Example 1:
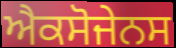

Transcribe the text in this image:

ਐਕਸੋਜੇਨਸ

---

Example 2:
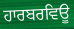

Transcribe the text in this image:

ਹਾਰਬਰਵਿਊ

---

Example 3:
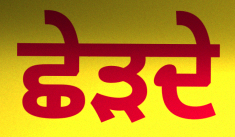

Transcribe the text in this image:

ਛੇੜਦੇ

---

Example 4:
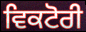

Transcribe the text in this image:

ਵਿਕਟੋਰੀ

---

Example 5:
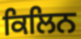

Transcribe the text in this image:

ਕਿਲਿਨ